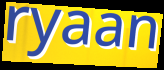
ryaan